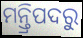
ମନ୍ତ୍ରିପଦରୁ